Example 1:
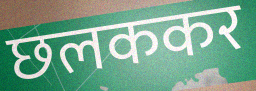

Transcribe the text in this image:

छलककर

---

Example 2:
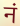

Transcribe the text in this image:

नं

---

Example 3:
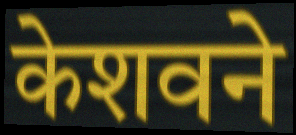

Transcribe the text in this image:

केशवने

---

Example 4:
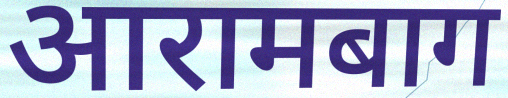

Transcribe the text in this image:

आरामबाग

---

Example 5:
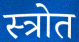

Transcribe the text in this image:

स्त्रोत